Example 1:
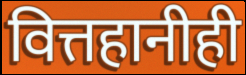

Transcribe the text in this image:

वित्तहानीही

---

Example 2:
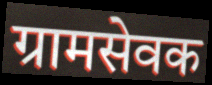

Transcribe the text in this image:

ग्रामसेवक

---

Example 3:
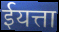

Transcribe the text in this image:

ईयत्ता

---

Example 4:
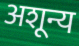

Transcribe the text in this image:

अशून्य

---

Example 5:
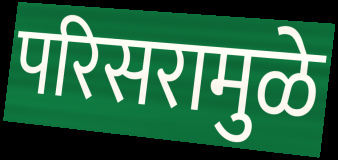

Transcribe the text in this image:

परिसरामुळे